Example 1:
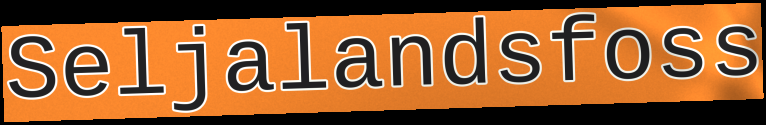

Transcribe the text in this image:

Seljalandsfoss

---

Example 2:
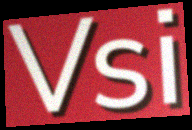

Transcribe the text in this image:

Vsi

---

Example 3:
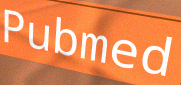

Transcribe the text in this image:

Pubmed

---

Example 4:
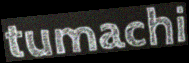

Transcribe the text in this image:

tumachi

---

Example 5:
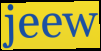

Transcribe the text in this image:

jeew